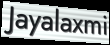
Jayalaxmi